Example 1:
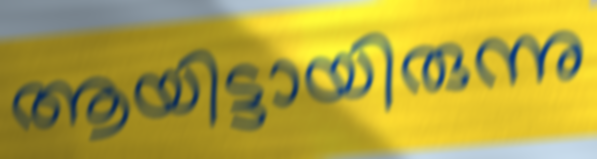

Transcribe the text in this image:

ആയിട്ടായിരുന്നു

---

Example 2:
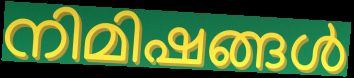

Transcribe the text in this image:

നിമിഷങ്ങൾ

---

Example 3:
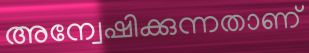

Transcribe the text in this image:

അന്വേഷിക്കുന്നതാണ്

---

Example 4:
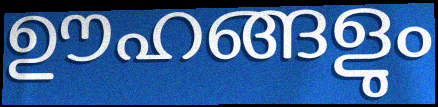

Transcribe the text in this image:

ഊഹങ്ങളും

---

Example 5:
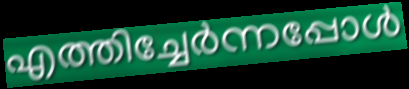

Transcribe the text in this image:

എത്തിച്ചേർന്നപ്പോൾ